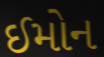
ઈમોન